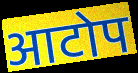
आटोप